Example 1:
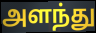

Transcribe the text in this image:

அளந்து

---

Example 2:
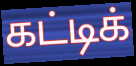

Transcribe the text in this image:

கட்டிக்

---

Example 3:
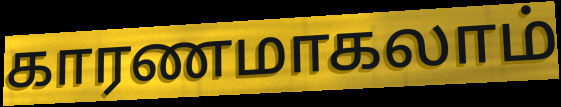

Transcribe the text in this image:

காரணமாகலாம்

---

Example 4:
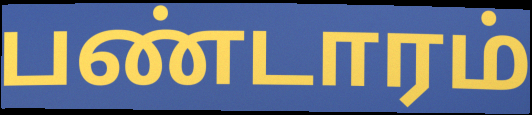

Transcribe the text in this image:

பண்டாரம்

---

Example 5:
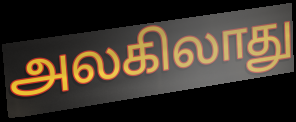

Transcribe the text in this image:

அலகிலாது